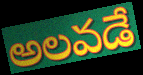
అలవడే